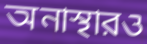
অনাস্থারও